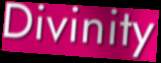
Divinity